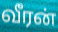
வீரன்